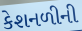
કેશનળીની